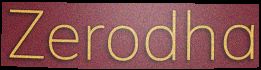
Zerodha